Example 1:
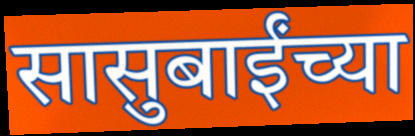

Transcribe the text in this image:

सासुबाईंच्या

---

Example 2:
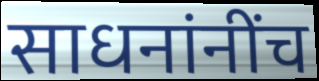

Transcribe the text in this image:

साधनांनींच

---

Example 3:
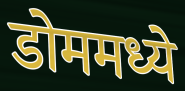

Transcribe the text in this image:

डोममध्ये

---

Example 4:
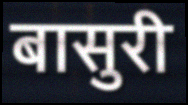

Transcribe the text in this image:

बासुरी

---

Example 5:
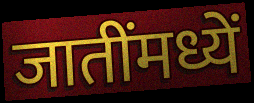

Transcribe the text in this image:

जातींमध्यें